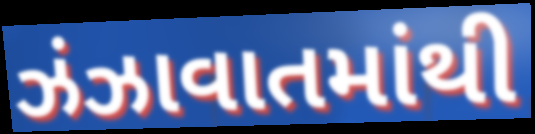
ઝંઝાવાતમાંથી